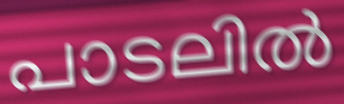
പാടലിൽ